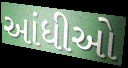
આંધીઓ